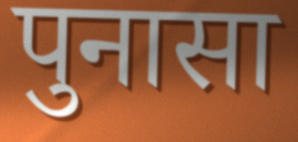
पुनासा